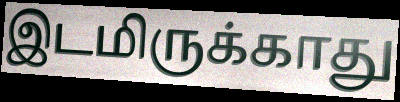
இடமிருக்காது